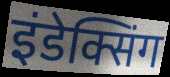
इंडेक्सिंग